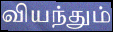
வியந்தும்